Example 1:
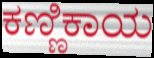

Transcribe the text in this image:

ಕಣ್ಣಿಕಾಯ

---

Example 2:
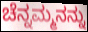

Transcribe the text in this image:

ಚೆನ್ನಮ್ಮನನ್ನು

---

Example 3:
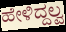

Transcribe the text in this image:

ಹೇಳಿದ್ದಲ್ವ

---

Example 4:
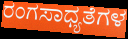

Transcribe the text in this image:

ರಂಗಸಾಧ್ಯತೆಗಳ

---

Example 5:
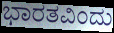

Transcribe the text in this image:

ಭಾರತವಿಂದು